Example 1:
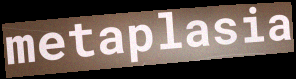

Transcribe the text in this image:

metaplasia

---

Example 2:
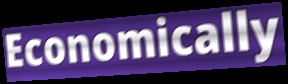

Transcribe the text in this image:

Economically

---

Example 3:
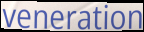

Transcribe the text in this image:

veneration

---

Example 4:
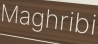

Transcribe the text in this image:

Maghribi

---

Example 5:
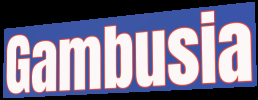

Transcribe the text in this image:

Gambusia